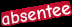
absentee